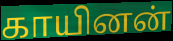
காயினன்